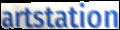
artstation